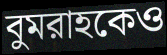
বুমরাহকেও